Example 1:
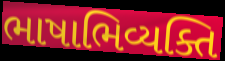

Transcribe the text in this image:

ભાષાભિવ્યક્તિ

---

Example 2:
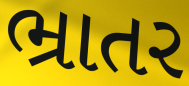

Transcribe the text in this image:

ભ્રાતર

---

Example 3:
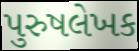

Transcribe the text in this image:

પુરુષલેખક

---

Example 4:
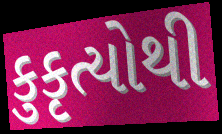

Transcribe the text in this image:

કુકૃત્યોથી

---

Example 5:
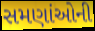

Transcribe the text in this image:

સમણાંઓની